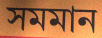
সমমান